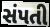
સંપતી